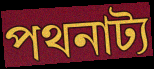
পথনাট্য